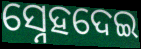
ସ୍ନେହଦେଇ